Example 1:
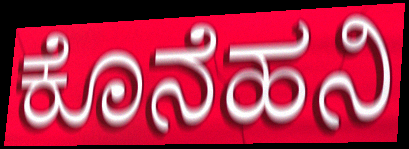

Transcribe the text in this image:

ಕೊನೆಹನಿ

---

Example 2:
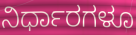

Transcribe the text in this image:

ನಿರ್ಧಾರಗಳೂ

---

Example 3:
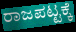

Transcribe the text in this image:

ರಾಜಪಟ್ಟಕ್ಕೆ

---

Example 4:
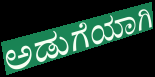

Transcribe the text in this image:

ಅಡುಗೆಯಾಗಿ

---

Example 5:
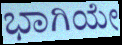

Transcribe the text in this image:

ಭಾಗಿಯೇ